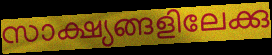
സാക്ഷ്യങ്ങളിലേക്കു